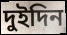
দুইদিন